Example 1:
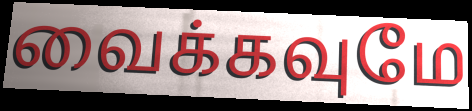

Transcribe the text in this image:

வைக்கவுமே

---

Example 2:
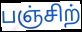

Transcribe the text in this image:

பஞ்சிற்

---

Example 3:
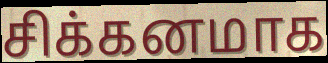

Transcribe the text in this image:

சிக்கனமாக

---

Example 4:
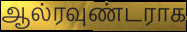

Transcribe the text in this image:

ஆல்ரவுண்டராக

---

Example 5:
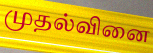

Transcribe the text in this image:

முதல்வினை